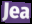
Jea